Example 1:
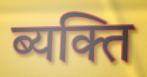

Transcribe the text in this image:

ब्यक्ति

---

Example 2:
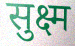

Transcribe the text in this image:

सुक्ष्म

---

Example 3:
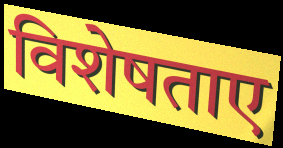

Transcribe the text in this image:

विशेषताए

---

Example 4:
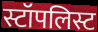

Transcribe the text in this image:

स्टॉपलिस्ट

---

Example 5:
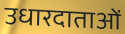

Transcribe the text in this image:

उधारदाताओं